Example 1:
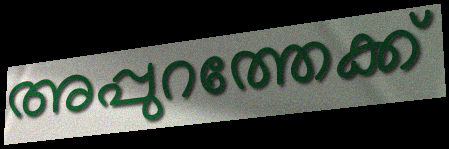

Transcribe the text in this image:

അപ്പുറത്തേക്ക്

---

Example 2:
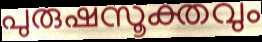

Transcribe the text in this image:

പുരുഷസൂക്തവും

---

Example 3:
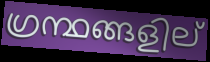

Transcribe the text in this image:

ഗ്രന്ഥങ്ങളില്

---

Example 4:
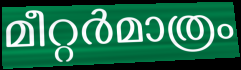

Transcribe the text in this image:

മീറ്റർമാത്രം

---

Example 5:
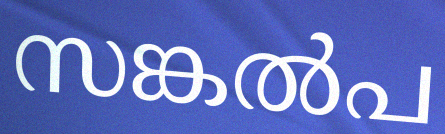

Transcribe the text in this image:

സങ്കൽപ